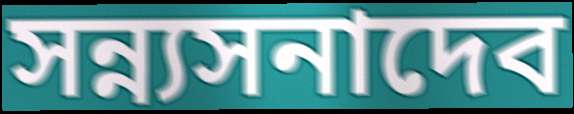
সন্ন্যসনাদেব